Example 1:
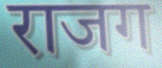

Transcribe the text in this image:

राजग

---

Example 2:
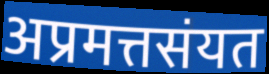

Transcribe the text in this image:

अप्रमत्तसंयत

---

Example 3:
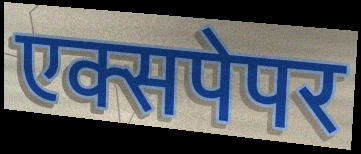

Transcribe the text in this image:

एक्सपेपर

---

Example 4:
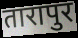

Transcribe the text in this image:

तारापुर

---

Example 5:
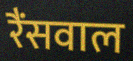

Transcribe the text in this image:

रैंसवाल